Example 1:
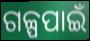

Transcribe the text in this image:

ଗଳ୍ପପାଇଁ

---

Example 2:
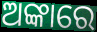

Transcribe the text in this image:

ଅଙ୍କାରେ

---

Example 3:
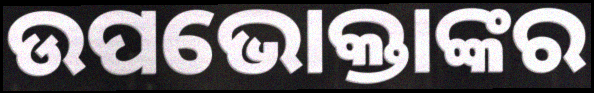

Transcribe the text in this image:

ଉପଭୋକ୍ତାଙ୍କର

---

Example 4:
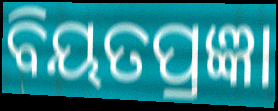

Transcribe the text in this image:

ବିୟତପ୍ରଜ୍ଞା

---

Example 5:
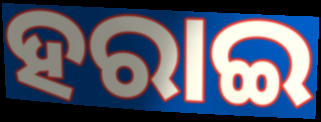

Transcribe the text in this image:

ହରାଇ